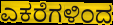
ಎಕರೆಗಳಿಂದ